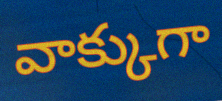
వాక్కుగా